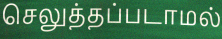
செலுத்தப்படாமல்